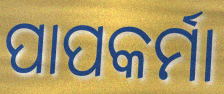
ପାପକର୍ମା